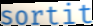
sortit